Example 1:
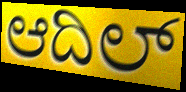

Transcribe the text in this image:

ಆದಿಲ್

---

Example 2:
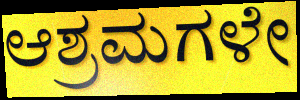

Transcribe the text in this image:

ಆಶ್ರಮಗಳೇ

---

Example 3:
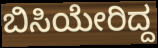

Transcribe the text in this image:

ಬಿಸಿಯೇರಿದ್ದ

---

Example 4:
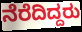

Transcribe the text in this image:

ನೆರೆದಿದ್ದರು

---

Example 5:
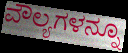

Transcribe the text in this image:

ವೌಲ್ಯಗಳನ್ನೂ